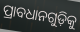
ପ୍ରାବଧାନଗୁଡ଼ିକୁ